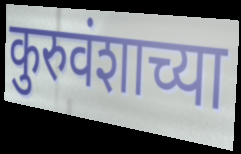
कुरुवंशाच्या